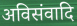
अविसंवादि